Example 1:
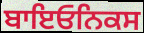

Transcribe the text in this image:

ਬਾਇਓਨਿਕਸ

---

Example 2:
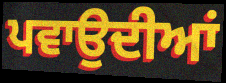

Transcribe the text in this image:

ਪਵਾਉਦੀਆਂ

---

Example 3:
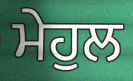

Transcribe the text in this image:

ਮੇਹੁਲ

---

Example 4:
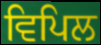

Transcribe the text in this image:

ਵਿਪਿਲ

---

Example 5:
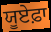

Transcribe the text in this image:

ਯੂਏਫ਼ਾ